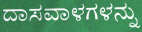
ದಾಸವಾಳಗಳನ್ನು